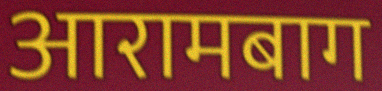
आरामबाग